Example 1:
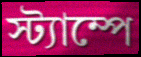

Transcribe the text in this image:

স্ট্যাম্পে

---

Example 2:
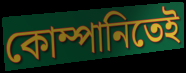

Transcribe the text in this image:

কোম্পানিতেই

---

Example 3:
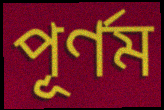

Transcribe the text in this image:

পূর্ণম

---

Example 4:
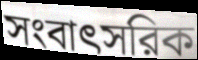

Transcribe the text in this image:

সংবাৎসরিক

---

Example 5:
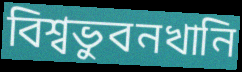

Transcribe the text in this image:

বিশ্বভুবনখানি